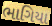
ભાગિયા